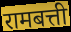
रामबत्ती